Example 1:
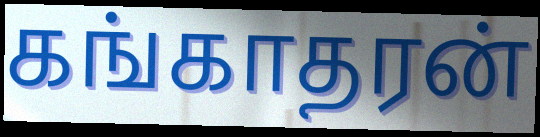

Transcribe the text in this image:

கங்காதரன்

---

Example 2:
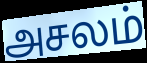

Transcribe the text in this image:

அசலம்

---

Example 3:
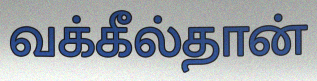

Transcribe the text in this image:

வக்கீல்தான்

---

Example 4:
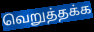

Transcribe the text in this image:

வெறுத்தக்க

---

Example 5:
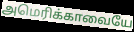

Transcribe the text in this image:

அமெரிக்காவையே